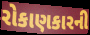
રોકાણકારની